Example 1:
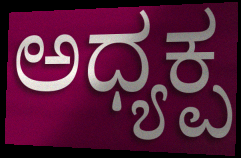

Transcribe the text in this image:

ಅಧ್ಯಕ್ಪ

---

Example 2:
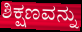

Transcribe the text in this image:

ಶಿಕ್ಷಣವನ್ನು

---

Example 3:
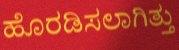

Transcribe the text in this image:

ಹೊರಡಿಸಲಾಗಿತ್ತು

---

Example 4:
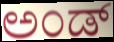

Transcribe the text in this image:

ಅಂಡ್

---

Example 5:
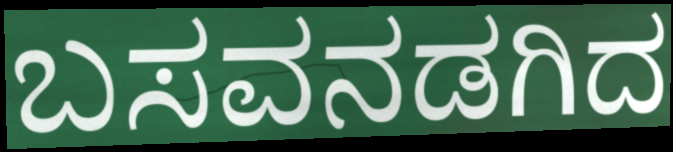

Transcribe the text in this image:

ಬಸವನಡಗಿದ